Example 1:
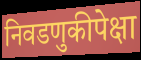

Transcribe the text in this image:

निवडणुकीपेक्षा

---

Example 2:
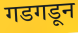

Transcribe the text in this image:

गडगडून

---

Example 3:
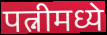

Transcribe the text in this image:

पत्नीमध्ये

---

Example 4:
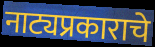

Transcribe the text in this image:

नाट्यप्रकाराचे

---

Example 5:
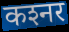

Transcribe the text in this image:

कश्‍नर